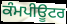
ਕੰਮਪੀਊਟਰ